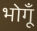
भोगूँ